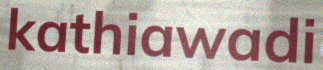
kathiawadi